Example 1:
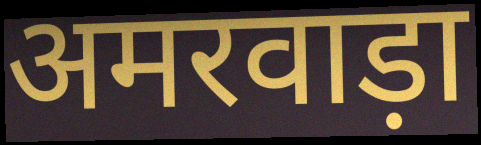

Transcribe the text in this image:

अमरवाड़ा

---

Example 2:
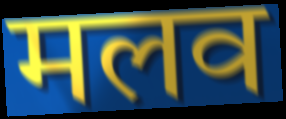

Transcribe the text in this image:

मलव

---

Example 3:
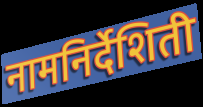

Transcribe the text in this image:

नामनिर्देशिती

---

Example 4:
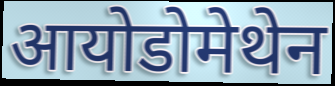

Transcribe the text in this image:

आयोडोमेथेन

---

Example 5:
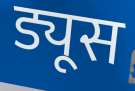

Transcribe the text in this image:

ड्यूस